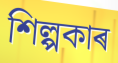
শিল্পকাৰ